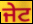
ਜੇਟ